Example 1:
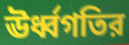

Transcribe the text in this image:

ঊর্ধ্বগতির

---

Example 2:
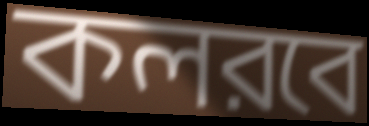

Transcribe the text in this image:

কলরবে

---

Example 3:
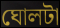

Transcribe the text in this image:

ঘোলটা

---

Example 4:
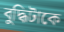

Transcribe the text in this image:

বুদ্ধিটাকে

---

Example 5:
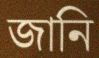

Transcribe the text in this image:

জানি